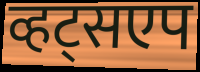
व्हट्सएप